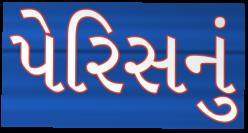
પેરિસનું